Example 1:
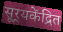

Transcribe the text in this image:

सूर्यकेंद्रित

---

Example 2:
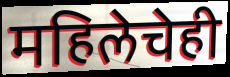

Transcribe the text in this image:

महिलेचेही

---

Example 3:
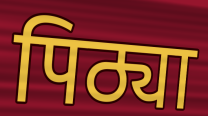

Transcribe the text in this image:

पिठ्या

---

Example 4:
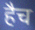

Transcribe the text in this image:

हैच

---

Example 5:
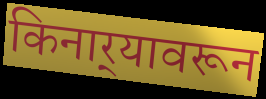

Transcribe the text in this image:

किनार्यावरून